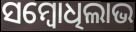
ସମ୍ବୋଧିଲାଭ